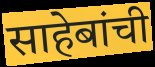
साहेबांची